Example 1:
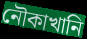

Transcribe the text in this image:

নৌকাখানি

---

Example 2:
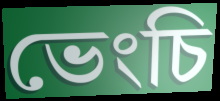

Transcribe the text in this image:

ভেংচি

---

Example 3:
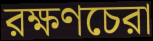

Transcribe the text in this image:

রক্ষণচেরা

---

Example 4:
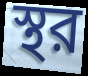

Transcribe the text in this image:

স্থর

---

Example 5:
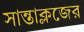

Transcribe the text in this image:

সান্তাক্লজের